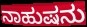
ನಾಹುಷನು